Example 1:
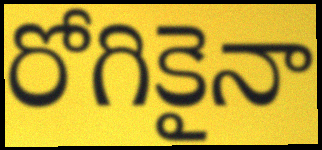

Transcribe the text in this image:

రోగికైనా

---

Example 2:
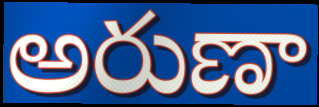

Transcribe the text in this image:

అరుణా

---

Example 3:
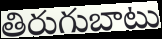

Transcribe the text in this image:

తిరుగుబాటు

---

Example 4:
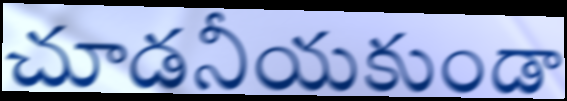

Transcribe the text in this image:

చూడనీయకుండా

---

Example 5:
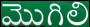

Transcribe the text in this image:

మొగిలి